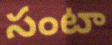
సంటా